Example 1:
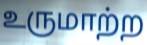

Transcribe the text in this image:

உருமாற்ற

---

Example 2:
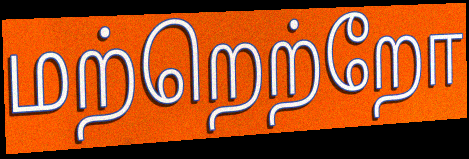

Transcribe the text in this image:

மற்றெற்றோ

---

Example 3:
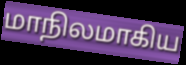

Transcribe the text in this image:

மாநிலமாகிய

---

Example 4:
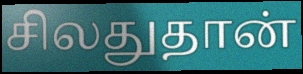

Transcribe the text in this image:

சிலதுதான்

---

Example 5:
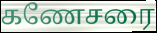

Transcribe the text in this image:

கணேசரை